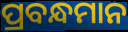
ପ୍ରବନ୍ଧମାନ